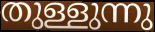
തുള്ളുന്നു